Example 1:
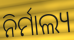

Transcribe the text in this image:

ନିର୍ମାଲ୍ୟ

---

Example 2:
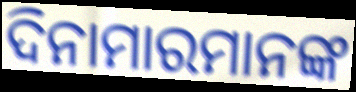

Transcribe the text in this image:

ଦିନାମାରମାନଙ୍କ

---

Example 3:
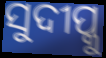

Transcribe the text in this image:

ସୁଦୀପ୍କୁ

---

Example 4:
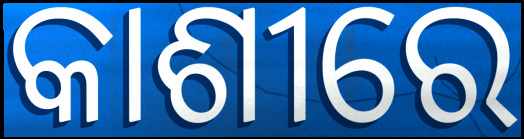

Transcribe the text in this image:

କାଶୀରେ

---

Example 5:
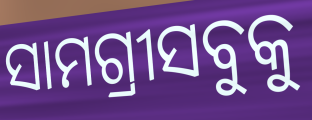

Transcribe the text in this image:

ସାମଗ୍ରୀସବୁକୁ